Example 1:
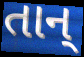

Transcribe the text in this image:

તાન્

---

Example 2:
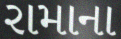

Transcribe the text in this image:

રામાના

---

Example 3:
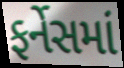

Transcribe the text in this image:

ફર્નેસમાં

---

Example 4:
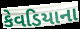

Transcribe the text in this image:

કેવડિયાના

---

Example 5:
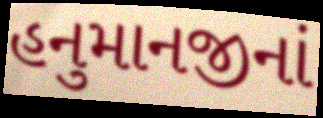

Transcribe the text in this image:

હનુમાનજીનાં